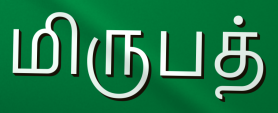
மிருபத்